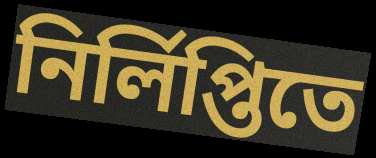
নির্লিপ্তিতে